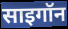
साइगॉन